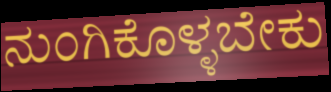
ನುಂಗಿಕೊಳ್ಳಬೇಕು